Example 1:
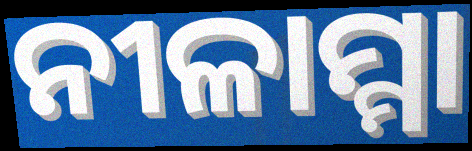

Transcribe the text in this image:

ନୀଳାମ୍ମା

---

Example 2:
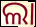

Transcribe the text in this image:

ଲା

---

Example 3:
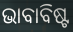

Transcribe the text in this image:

ଭାବାବିଷ୍ଟ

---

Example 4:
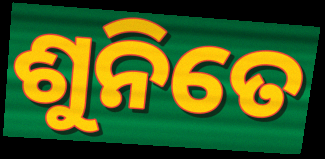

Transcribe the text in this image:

ଶୁନିତେ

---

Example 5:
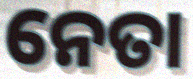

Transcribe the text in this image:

ନେତା